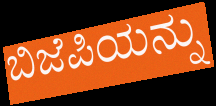
ಬಿಜೆಪಿಯನ್ನು